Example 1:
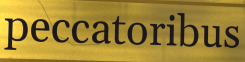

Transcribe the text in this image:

peccatoribus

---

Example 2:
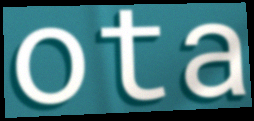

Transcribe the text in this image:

ota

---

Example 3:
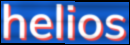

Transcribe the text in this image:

helios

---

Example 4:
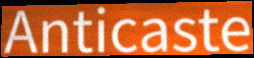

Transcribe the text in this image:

Anticaste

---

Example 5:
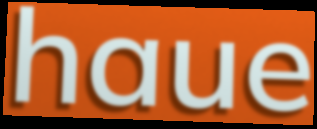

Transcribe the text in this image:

haue